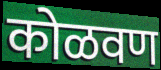
कोळवण